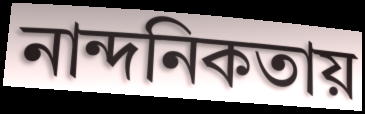
নান্দনিকতায়